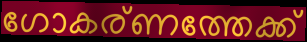
ഗോകര്ണത്തേക്ക്